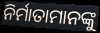
ନିର୍ମାତାମାନଙ୍କୁ